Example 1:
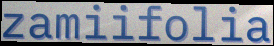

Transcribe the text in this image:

zamiifolia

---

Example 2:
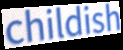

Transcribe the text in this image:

childish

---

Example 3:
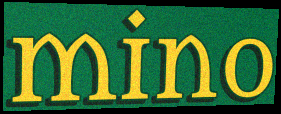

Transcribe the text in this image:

mino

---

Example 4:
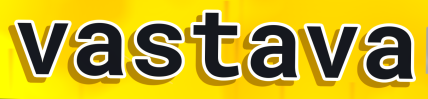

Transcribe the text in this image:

vastava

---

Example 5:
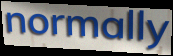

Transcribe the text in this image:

normally